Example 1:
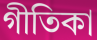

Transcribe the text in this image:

গীতিকা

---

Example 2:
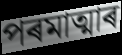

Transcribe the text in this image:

পৰমাত্মাৰ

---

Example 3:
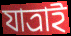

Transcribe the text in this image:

যাত্ৰাই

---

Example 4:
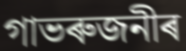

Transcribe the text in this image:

গাভৰুজনীৰ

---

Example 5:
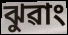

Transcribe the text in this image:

ঝুৱাং